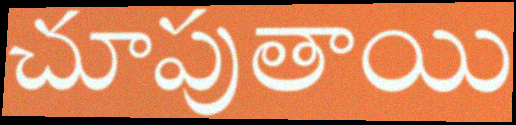
చూపుతాయి